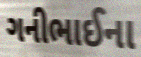
ગનીભાઈના